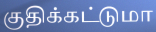
குதிக்கட்டுமா